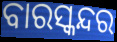
ବାରସ୍କନ୍ଦର